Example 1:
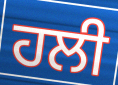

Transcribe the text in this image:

ਹਲੀ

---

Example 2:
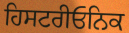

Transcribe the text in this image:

ਹਿਸਟਰੀਓਨਿਕ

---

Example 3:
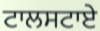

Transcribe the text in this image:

ਟਾਲਸਟਾਏ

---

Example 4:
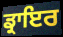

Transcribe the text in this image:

ਡ੍ਰਾਇਰ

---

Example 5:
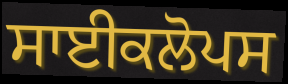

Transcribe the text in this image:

ਸਾਈਕਲੋਪਸ